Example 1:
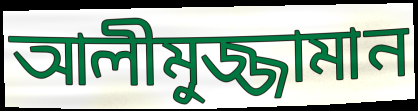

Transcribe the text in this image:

আলীমুজ্জামান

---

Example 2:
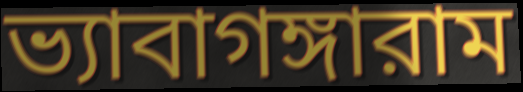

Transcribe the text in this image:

ভ্যাবাগঙ্গারাম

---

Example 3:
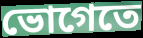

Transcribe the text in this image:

ভোগেতে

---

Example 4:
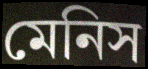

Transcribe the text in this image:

মেনিস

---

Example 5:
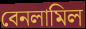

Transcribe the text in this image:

বেনলামিল